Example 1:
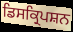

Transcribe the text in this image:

ਡਿਸਕ੍ਰਿਪਸ਼ਨ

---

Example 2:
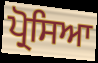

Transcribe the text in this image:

ਪ੍ਰੋਸਿਆ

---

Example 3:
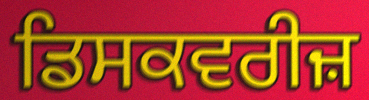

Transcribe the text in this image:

ਡਿਸਕਵਰੀਜ਼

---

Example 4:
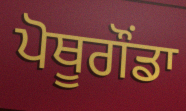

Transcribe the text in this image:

ਪੋਥੂਗੌਂਡਾ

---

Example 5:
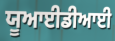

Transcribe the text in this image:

ਯੂਆਈਡੀਆਈ